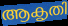
ആകൃതി